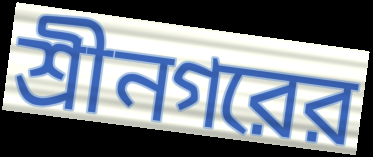
শ্রীনগরের